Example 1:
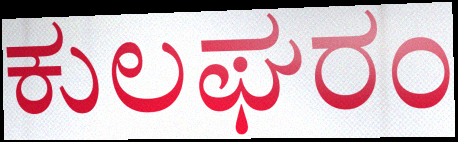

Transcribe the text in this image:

ಕುಲಘರಂ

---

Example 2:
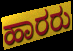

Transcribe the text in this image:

ಹಾರರು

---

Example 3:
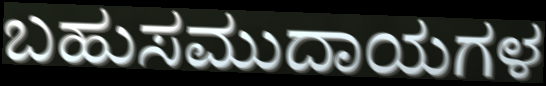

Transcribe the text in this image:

ಬಹುಸಮುದಾಯಗಳ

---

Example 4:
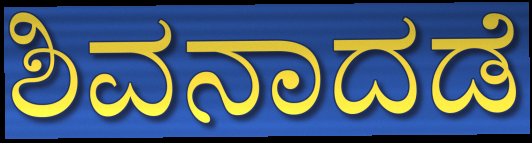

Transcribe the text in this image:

ಶಿವನಾದಡೆ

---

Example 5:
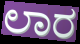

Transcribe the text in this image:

ಲಾರ